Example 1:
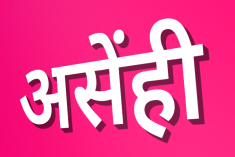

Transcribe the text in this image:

असेंही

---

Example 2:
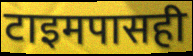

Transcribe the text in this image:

टाइमपासही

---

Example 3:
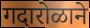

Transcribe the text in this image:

गदारोळाने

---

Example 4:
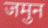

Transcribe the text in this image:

जमुन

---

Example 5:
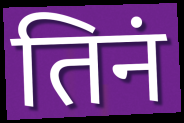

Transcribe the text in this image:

तिनं